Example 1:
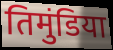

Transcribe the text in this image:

तिमुंडिया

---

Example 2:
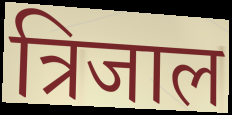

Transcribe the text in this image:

त्रिजाल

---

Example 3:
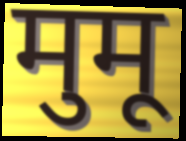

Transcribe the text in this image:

मुमू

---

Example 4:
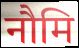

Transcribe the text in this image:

नौमि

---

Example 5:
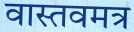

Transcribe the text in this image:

वास्तवमत्र